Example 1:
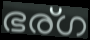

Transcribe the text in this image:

ഭര്ഗ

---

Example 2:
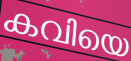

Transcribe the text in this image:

കവിയെ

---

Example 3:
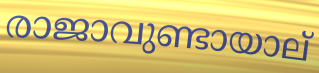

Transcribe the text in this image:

രാജാവുണ്ടായാല്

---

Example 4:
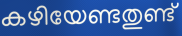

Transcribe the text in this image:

കഴിയേണ്ടതുണ്ട്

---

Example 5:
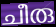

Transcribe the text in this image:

ചീരു